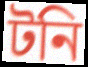
টনি